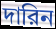
দারিন